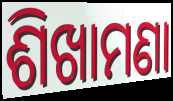
ଶିଖାମଣା